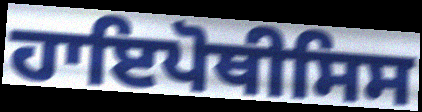
ਹਾਇਪੋਥੀਸਿਸ